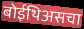
बोईथिअसचा